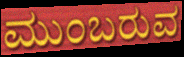
ಮುಂಬರುವ